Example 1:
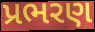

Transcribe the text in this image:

પ્રભરણ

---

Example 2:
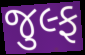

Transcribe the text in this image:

જુલ્ફ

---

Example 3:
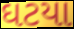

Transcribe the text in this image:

ઘટયા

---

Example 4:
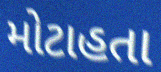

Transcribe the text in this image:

મોટાહતા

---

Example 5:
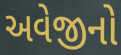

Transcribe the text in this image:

અવેજીનો